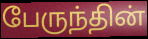
பேருந்தின்